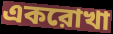
একরোখা